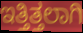
ಇತ್ತಿತ್ತಲಾಗಿ